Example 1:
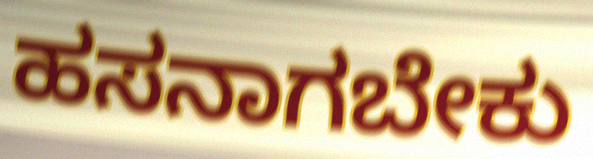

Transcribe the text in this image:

ಹಸನಾಗಬೇಕು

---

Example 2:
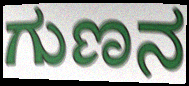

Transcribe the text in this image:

ಗುಣನ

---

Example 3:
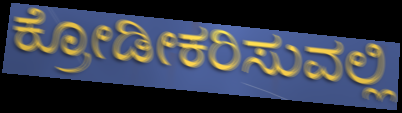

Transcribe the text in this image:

ಕ್ರೋಡೀಕರಿಸುವಲ್ಲಿ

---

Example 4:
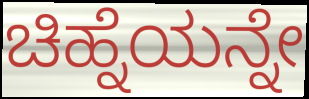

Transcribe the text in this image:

ಚಿಹ್ನೆಯನ್ನೇ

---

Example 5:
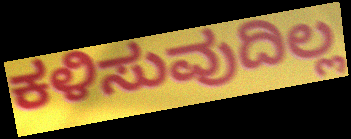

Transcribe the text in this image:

ಕಳಿಸುವುದಿಲ್ಲ